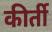
कीर्ती